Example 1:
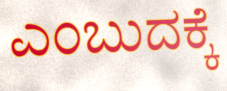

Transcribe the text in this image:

ಎಂಬುದಕ್ಕೆ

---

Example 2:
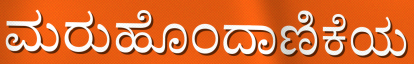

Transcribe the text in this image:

ಮರುಹೊಂದಾಣಿಕೆಯ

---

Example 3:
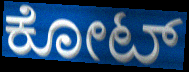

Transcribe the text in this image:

ಕೋಟ್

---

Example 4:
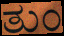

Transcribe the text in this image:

ತುಂ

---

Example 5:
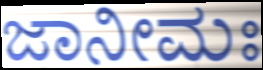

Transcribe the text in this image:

ಜಾನೀಮಃ